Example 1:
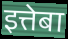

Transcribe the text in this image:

इत्तेबा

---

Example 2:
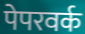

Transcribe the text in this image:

पेपरवर्क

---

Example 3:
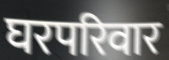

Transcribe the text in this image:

घरपरिवार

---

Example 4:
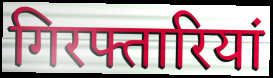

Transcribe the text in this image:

गिरफ्तारियां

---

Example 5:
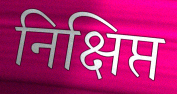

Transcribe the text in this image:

निक्षिप्त